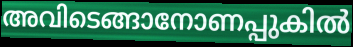
അവിടെങ്ങാനോണപ്പുകിൽ